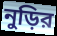
নুড়ির